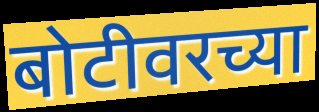
बोटीवरच्या